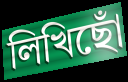
লিখিছোঁ